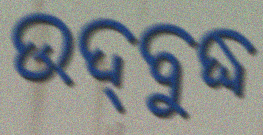
ଉଦ୍‌ବୁଦ୍ଧ